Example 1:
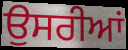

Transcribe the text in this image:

ਉਸਰੀਆਂ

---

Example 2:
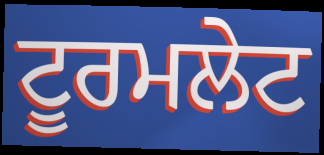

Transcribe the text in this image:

ਟੂਰਮਲੇਟ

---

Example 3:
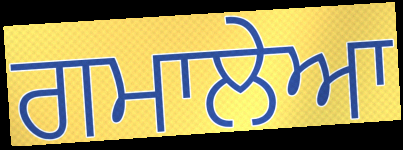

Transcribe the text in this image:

ਗਮਾਲੇਆ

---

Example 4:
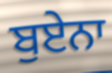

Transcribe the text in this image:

ਬੁਏਨਾ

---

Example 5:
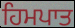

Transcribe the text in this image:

ਹਿਮਪਾਤ